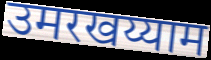
उमरखय्याम